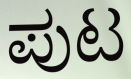
ಪುಟ